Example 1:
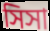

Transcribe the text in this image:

সিসা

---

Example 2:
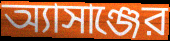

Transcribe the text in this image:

অ্যাসাঞ্জের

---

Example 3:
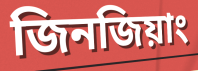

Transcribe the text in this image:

জিনজিয়াং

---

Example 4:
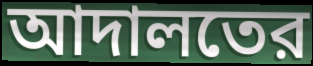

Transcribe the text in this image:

আদালতের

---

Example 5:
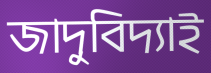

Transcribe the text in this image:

জাদুবিদ্যাই